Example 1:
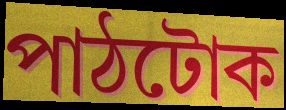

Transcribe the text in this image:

পাঠটোক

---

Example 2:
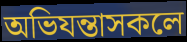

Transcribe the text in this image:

অভিযন্তাসকলে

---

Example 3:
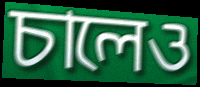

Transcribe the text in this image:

চালেও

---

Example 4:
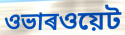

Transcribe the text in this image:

ওভাৰওয়েট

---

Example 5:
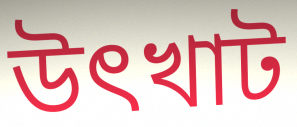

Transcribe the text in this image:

উৎখাট